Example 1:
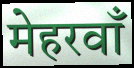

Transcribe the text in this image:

मेहरवाँ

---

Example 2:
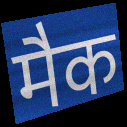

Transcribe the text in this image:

मैक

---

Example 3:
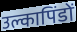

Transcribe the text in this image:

उल्कापिंडों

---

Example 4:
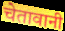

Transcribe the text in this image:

चेतावानी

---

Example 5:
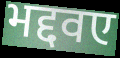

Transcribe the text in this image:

भद्दवए